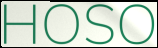
HOSO